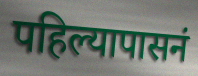
पहिल्यापासनं